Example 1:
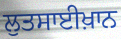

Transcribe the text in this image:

ਲੁਤਸਾਈਖ਼ਾਨ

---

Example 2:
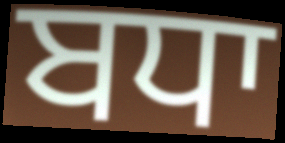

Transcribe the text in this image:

ਬਧਾ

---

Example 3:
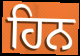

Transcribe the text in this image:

ਹਿਨ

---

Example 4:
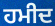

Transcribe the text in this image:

ਹਮੀਦ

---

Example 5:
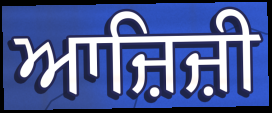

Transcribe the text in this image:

ਆਜ਼ਿਜ਼ੀ